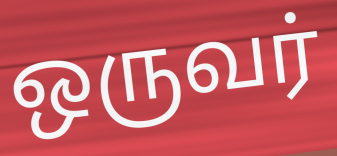
ஒருவர்